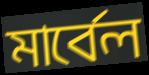
মার্বেল